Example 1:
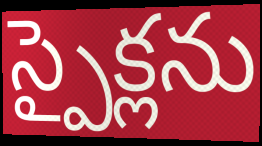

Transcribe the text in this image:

స్పైక్లను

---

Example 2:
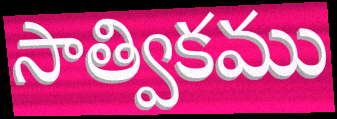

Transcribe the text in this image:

సాత్వికము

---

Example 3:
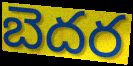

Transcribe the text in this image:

బెదర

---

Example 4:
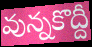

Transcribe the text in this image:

వున్నకొద్దీ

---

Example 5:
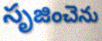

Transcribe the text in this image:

సృజించెను